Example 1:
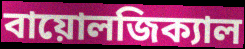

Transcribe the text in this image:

বায়োলজিক্যাল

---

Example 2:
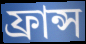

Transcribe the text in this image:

ফ্রান্স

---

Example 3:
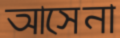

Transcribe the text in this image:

আসেনা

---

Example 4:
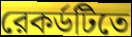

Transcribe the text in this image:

রেকর্ডটিতে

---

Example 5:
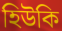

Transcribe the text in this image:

হিউকি